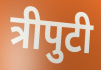
त्रीपुटी